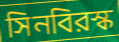
সিনবিরস্ক